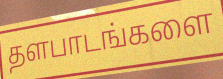
தளபாடங்களை